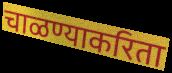
चाळण्याकरिता